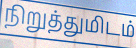
நிறுத்துமிடம்